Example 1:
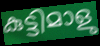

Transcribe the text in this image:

കുട്ടിമാളു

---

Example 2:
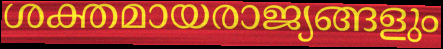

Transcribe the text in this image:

ശക്തമായരാജ്യങ്ങളും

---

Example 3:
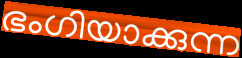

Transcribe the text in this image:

ഭംഗിയാക്കുന്ന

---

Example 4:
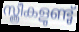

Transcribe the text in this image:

സ്ത്രീകളുണ്ടു്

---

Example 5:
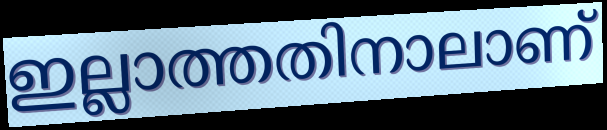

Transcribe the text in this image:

ഇല്ലാത്തതിനാലാണ്